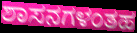
ಶಾಸನಗಳಂತಹ